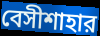
বেসীশাহার